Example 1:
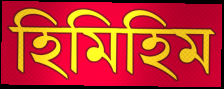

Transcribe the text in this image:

হিমিহিম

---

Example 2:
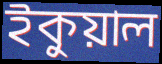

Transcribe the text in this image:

ইকুয়াল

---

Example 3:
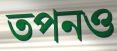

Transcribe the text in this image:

তপনও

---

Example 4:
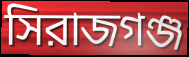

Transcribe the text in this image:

সিরাজগঞ্জ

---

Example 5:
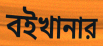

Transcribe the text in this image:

বইখানার